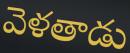
వెళతాడు